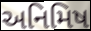
અનિમિષ